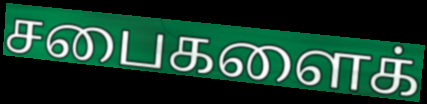
சபைகளைக்